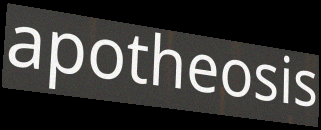
apotheosis